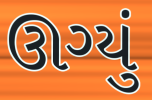
ઊગ્યું